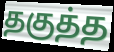
தகுத்த